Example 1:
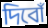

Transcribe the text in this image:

দিবোঁ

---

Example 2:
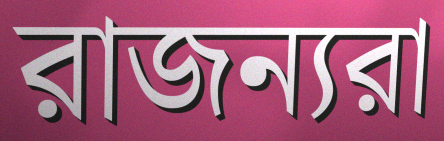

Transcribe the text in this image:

রাজন্যরা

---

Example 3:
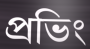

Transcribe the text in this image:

প্রভিং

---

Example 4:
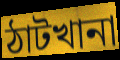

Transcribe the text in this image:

ঠাটখানা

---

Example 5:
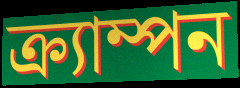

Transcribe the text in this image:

ক্র্যাম্পন